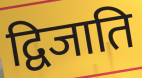
द्विजाति